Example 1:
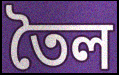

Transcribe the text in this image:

তৈল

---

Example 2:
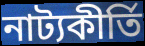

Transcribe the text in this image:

নাট্যকীর্তি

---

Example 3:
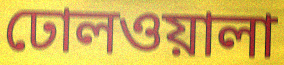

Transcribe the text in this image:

ঢোলওয়ালা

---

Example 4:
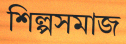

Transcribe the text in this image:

শিল্পসমাজ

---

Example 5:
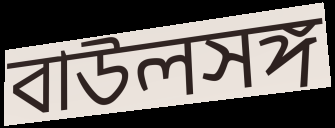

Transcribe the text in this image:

বাউলসঙ্গ